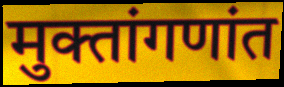
मुक्तांगणांत